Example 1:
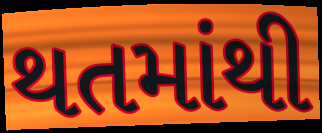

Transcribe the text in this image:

થતમાંથી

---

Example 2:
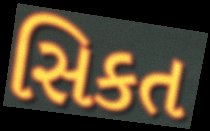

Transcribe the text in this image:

સિકત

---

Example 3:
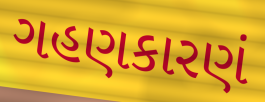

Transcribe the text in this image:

ગહણકારણં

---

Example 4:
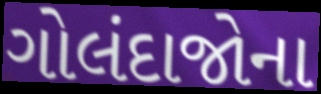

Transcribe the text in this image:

ગોલંદાજોના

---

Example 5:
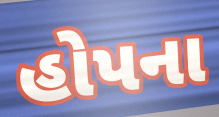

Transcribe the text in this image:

હોપના